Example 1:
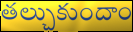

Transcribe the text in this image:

తల్చుకుందాం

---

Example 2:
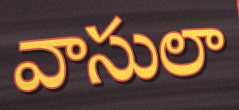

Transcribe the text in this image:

వాసులా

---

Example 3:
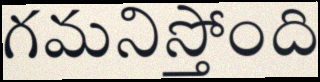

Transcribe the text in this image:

గమనిస్తోంది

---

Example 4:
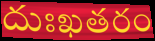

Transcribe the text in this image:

దుఃఖతరం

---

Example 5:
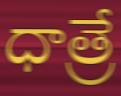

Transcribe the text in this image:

ధాత్రే